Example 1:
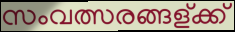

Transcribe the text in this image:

സംവത്സരങ്ങള്ക്ക്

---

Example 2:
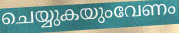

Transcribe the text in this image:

ചെയ്യുകയുംവേണം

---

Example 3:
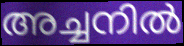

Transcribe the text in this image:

അച്ചനിൽ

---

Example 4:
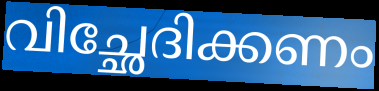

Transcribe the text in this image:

വിച്ഛേദിക്കണം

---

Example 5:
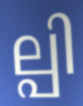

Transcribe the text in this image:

ല്പി